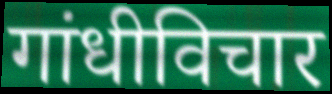
गांधीविचार